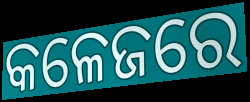
କଳେଜରେ